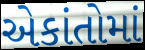
એકાંતોમાં